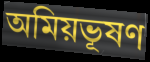
অমিয়ভূষণ